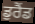
ਡੁਰੈਂਡ